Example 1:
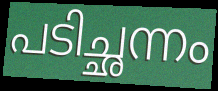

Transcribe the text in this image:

പടിച്ഛന്നം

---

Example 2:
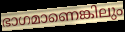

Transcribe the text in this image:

ഭാഗമാണെങ്കിലും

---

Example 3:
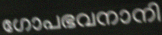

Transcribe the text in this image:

ഗോപഭവനാനി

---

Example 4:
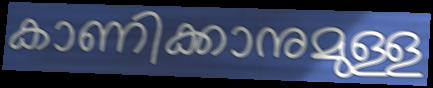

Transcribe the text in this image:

കാണിക്കാനുമുള്ള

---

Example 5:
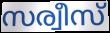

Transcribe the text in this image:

സര്വീസ്